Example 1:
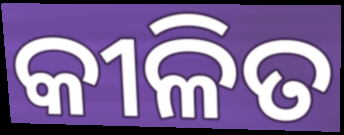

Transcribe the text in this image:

କୀଳିତ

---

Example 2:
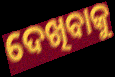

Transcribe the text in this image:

ଦେଖିବାକୁ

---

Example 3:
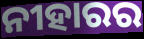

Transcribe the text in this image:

ନୀହାରର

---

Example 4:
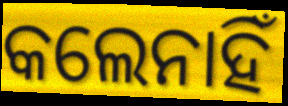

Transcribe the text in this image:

କଲେନାହିଁ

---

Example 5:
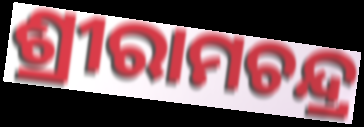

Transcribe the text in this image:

ଶ୍ରୀରାମଚନ୍ଦ୍ର